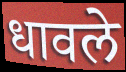
धावले